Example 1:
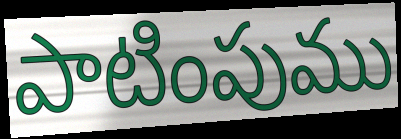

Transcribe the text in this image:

పాటింపుము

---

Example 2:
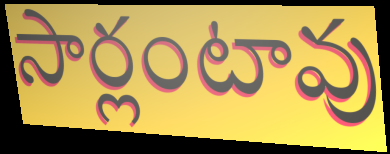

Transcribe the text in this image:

సార్లంటావు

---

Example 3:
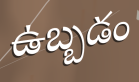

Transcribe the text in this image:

ఉబ్బడం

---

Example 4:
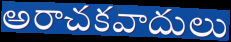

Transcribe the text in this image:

అరాచకవాదులు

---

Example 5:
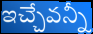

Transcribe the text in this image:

ఇచ్చేవన్నీ